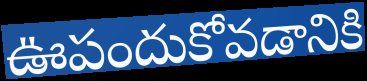
ఊపందుకోవడానికి